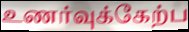
உணர்வுக்கேற்ப